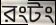
রংটং